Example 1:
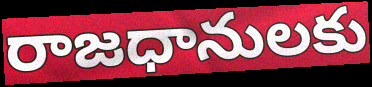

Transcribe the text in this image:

రాజధానులకు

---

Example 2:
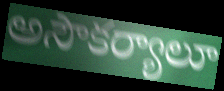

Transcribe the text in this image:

అసౌకర్యాలూ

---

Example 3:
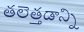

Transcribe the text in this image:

తలెత్తడాన్ని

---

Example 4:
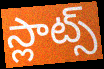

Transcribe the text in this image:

స్లాట్స్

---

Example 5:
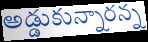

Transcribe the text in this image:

అడ్డుకున్నారన్న